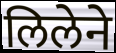
लिलेने